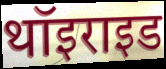
थॉइराइड